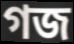
গজ